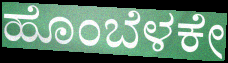
ಹೊಂಬೆಳಕೇ